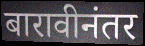
बारावीनंतर